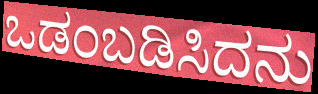
ಒಡಂಬಡಿಸಿದನು